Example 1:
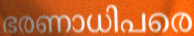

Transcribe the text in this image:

ഭരണാധിപരെ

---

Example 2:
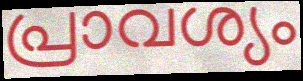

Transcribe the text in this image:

പ്രാവശ്യം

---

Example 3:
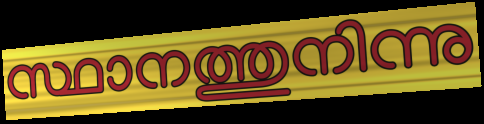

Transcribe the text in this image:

സ്ഥാനത്തുനിന്നു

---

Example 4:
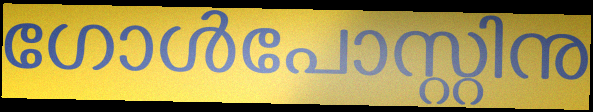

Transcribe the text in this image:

ഗോൾപോസ്റ്റിനു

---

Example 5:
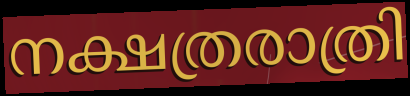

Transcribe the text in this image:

നക്ഷത്രരാത്രി